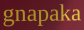
gnapaka